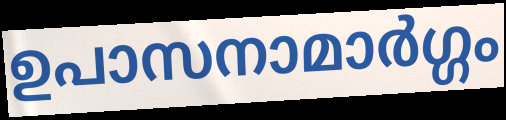
ഉപാസനാമാർഗ്ഗം